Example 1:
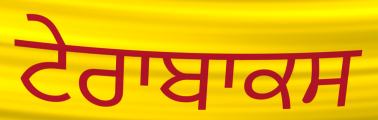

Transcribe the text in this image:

ਟੇਰਾਬਾਕਸ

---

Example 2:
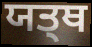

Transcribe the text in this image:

ਯਤ੍ਥ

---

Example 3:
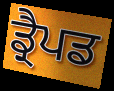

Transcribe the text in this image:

ਡ੍ਰੈਪਡ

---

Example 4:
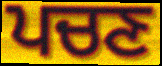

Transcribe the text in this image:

ਪਚਣ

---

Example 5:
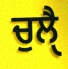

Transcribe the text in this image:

ਚੁਲੈੑ